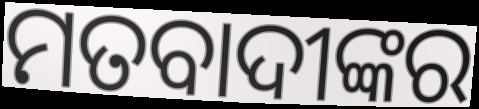
ମତବାଦୀଙ୍କର